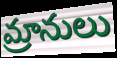
మ్రానులు